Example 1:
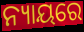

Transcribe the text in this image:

ନ୍ୟାୟରେ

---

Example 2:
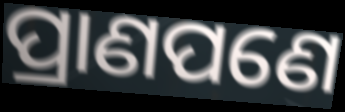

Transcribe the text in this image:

ପ୍ରାଣପଣେ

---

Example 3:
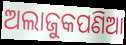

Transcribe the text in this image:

ଅଲାଜୁକପଣିଆ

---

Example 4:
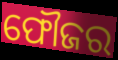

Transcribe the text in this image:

ଫୌଜର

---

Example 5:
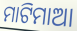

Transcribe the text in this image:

ମାଟିମାଆ